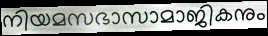
നിയമസഭാസാമാജികനും